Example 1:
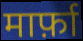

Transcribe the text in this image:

मार्फ़ा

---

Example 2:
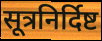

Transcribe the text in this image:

सूत्रनिर्दिष्ट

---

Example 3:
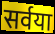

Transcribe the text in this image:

सर्वया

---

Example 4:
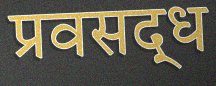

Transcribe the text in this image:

प्रवसद्ध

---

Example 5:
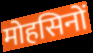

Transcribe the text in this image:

मोहसिनों